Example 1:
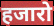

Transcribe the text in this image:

हजारो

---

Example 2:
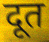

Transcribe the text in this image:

दूत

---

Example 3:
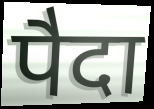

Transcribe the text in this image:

पैदा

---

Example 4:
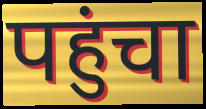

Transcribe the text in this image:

पहुंचा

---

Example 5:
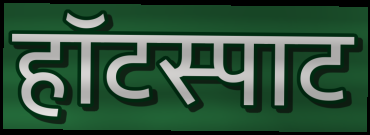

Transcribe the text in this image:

हॉटस्पाट